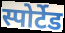
स्पोर्टेड